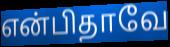
என்பிதாவே